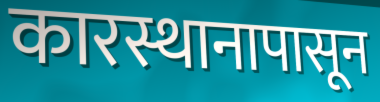
कारस्थानापासून